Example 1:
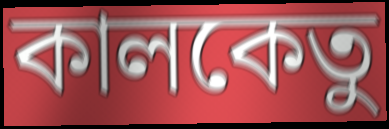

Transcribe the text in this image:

কালকেতু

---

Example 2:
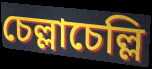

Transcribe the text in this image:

চেল্লাচেল্লি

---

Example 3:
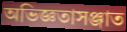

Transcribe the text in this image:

অভিজ্ঞতাসঞ্জাত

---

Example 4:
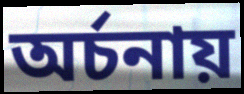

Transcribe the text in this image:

অর্চনায়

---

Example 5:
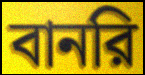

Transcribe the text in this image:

বানরি